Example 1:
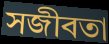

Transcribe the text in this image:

সজীবতা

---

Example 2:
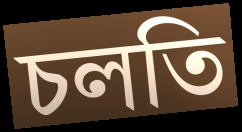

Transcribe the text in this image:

চলতি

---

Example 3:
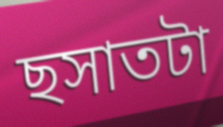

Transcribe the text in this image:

ছসাতটা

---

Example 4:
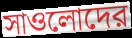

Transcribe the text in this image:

সাওলোদের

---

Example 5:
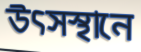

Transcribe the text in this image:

উৎসস্থানে